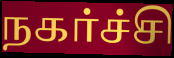
நகர்ச்சி